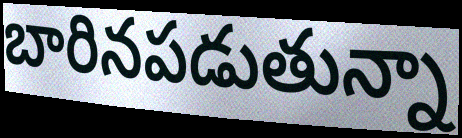
బారినపడుతున్నా